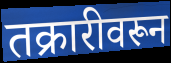
तक्रारीवरून